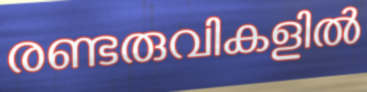
രണ്ടരുവികളിൽ